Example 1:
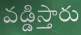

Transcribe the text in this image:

వడ్డిస్తారు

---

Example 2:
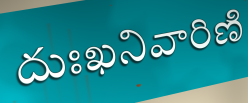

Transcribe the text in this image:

దుఃఖనివారిణి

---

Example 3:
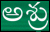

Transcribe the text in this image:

అశ్రు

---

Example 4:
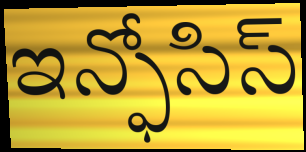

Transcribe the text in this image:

ఇన్ఫోసిస్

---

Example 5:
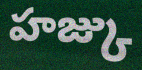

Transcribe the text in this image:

హజ్కు